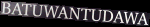
BATUWANTUDAWA